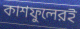
কাশফুলেরই